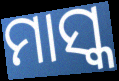
ମାସ୍କ